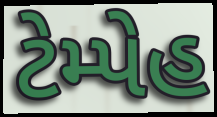
ટેમ્પેહ